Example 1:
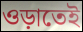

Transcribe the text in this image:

ওড়াতেই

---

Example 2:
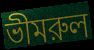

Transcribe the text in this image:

ভীমরুল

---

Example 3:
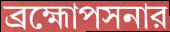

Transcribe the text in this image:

ব্রহ্মোপসনার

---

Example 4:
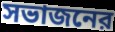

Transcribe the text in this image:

সভাজনের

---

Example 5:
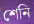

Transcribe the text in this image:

শেনি